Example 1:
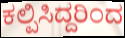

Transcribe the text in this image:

ಕಲ್ಪಿಸಿದ್ದರಿಂದ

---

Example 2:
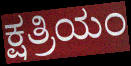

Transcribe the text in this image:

ಕ್ಷತ್ರಿಯಂ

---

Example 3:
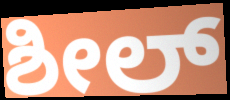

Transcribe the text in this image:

ಶೀಲ್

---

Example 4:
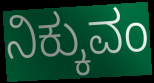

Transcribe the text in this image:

ನಿಕ್ಕುವಂ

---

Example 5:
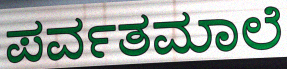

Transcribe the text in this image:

ಪರ್ವತಮಾಲೆ